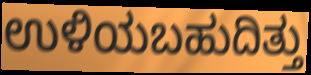
ಉಳಿಯಬಹುದಿತ್ತು